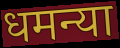
धमन्या